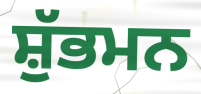
ਸ਼ੁੱਭਮਨ